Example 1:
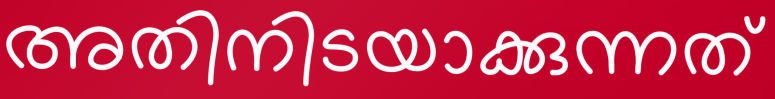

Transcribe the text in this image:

അതിനിടയാക്കുന്നത്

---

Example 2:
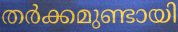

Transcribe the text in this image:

തർക്കമുണ്ടായി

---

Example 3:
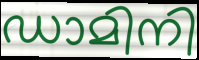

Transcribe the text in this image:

ഡാമിനി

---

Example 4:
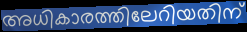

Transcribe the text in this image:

അധികാരത്തിലേറിയതിന്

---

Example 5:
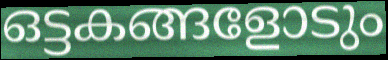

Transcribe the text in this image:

ഒട്ടകങ്ങളോടും